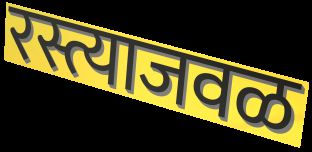
रस्त्याजवळ